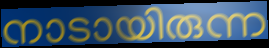
നാടായിരുന്ന